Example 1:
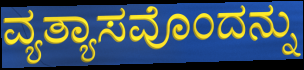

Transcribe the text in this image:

ವ್ಯತ್ಯಾಸವೊಂದನ್ನು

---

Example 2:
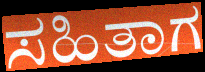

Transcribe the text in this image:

ಸಹಿತಾಗ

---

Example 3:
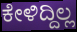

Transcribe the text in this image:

ಕೇಳಿದ್ದಿಲ್ಲ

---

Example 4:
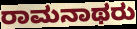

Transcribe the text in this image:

ರಾಮನಾಥರು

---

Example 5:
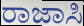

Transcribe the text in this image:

ರಾಜಾಸಿ